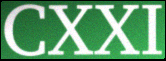
CXXI